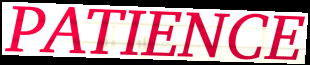
PATIENCE